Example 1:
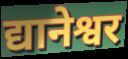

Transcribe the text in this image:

द्यानेश्वर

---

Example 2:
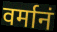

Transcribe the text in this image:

वर्मानं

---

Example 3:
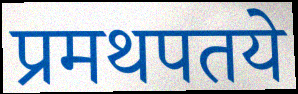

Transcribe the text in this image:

प्रमथपतये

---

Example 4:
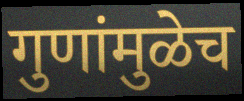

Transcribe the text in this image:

गुणांमुळेच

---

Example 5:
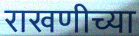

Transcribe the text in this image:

राखणीच्या